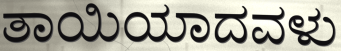
ತಾಯಿಯಾದವಳು